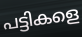
പട്ടികളെ